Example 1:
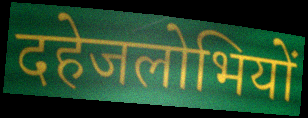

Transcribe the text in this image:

दहेजलोभियों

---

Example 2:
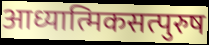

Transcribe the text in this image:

आध्यात्मिकसत्पुरुष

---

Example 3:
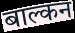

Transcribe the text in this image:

बाल्कन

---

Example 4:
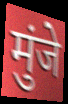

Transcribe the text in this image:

मुंजे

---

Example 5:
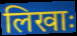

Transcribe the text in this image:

लिखाः